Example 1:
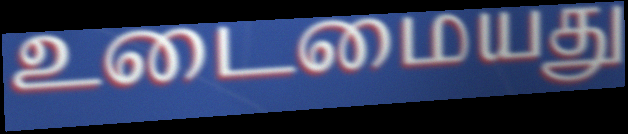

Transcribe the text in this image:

உடைமையது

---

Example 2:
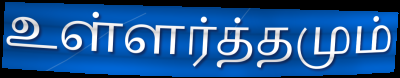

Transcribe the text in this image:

உள்ளர்த்தமும்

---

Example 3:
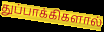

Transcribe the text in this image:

துப்பாக்கிகளால்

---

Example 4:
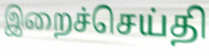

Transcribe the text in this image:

இறைச்செய்தி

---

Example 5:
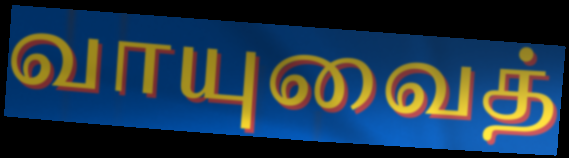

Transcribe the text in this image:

வாயுவைத்